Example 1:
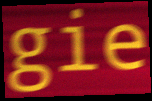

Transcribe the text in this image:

gie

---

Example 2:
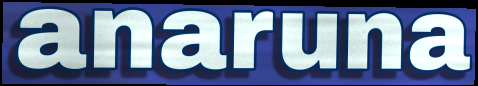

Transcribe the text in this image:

anaruna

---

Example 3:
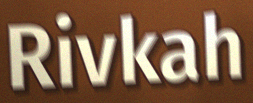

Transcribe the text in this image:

Rivkah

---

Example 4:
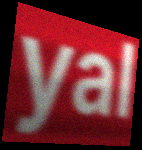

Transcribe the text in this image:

yal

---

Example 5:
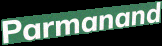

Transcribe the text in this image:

Parmanand